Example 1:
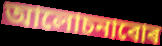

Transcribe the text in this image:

আলোচনাবোৰ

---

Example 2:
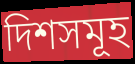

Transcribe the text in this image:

দিশসমূহ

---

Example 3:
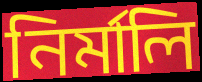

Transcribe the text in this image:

নিৰ্মালি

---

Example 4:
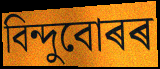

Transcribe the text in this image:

বিন্দুবোৰৰ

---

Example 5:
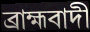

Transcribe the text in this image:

ব্ৰাহ্মবাদী